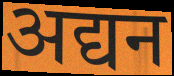
अद्यन